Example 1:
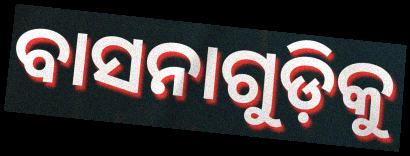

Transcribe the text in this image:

ବାସନାଗୁଡ଼ିକୁ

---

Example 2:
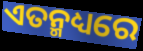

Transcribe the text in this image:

ଏତନ୍ମଧ୍ୟରେ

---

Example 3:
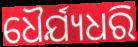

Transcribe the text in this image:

ଧୈର୍ଯ୍ୟଧରି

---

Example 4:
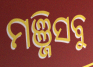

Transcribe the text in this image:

ମଞ୍ଜିସବୁ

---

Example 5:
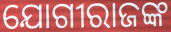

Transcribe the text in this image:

ଯୋଗୀରାଜଙ୍କ